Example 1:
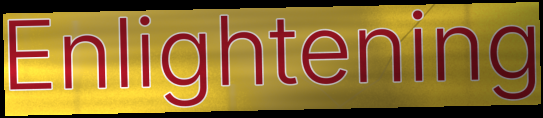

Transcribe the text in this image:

Enlightening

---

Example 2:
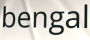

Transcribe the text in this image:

bengal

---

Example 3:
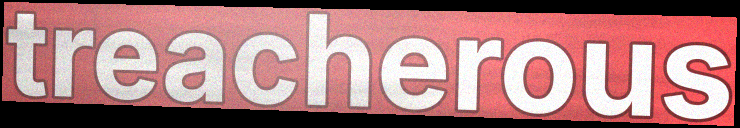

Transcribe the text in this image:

treacherous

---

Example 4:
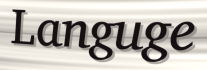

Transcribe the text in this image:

Languge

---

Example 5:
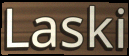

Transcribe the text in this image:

Laski